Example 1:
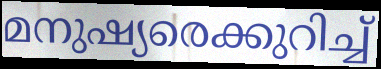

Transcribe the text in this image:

മനുഷ്യരെക്കുറിച്ച്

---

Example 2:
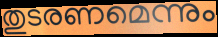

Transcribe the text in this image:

തുടരണമെന്നും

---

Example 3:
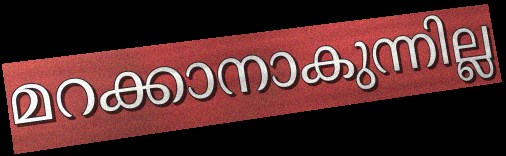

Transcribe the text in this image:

മറക്കാനാകുന്നില്ല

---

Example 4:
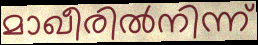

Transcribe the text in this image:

മാഖീരിൽനിന്ന്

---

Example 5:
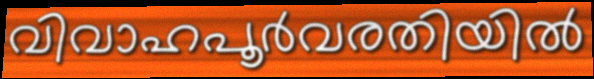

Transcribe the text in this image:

വിവാഹപൂർവരതിയിൽ